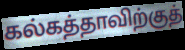
கல்கத்தாவிற்குத்